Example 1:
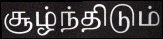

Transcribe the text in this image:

சூழ்ந்திடும்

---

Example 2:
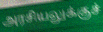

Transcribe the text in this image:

அரசியலுக்குச்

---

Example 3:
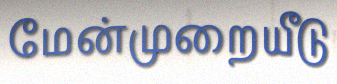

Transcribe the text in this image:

மேன்முறையீடு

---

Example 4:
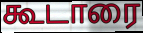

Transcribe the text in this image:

கூடாரை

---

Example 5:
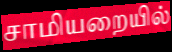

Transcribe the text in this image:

சாமியறையில்